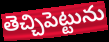
తెచ్చిపెట్టును